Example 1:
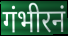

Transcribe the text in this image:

गंभीरनं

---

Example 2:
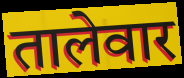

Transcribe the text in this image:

तालेवार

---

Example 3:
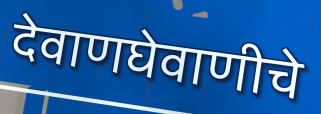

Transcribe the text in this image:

देवाणघेवाणीचे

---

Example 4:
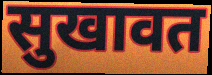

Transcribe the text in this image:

सुखावत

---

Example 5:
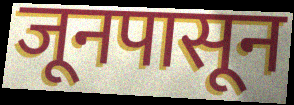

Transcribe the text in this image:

जूनपासून